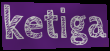
ketiga